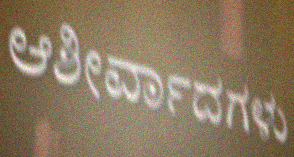
ಆಶೀರ್ವಾದಗಳು